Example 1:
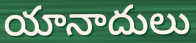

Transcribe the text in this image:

యానాదులు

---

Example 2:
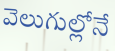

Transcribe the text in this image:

వెలుగుల్లోనే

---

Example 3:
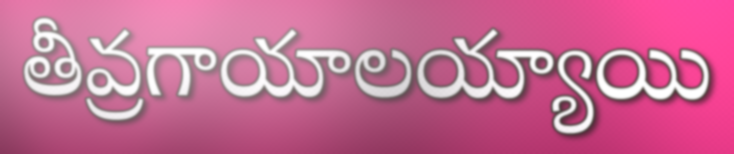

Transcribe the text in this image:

తీవ్రగాయాలయ్యాయి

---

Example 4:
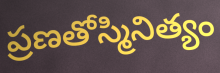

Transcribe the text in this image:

ప్రణతోస్మినిత్యం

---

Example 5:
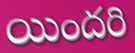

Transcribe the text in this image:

యిందరి